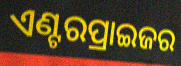
ଏଣ୍ଟରପ୍ରାଇଜର